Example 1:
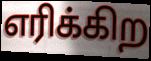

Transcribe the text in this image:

எரிக்கிற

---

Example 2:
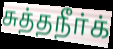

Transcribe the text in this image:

சுத்தநீர்க்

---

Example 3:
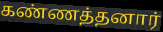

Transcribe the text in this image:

கண்ணத்தனார்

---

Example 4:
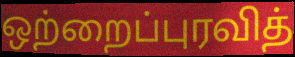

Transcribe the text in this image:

ஒற்றைப்புரவித்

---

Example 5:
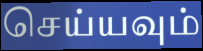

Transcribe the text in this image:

செய்யவும்